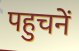
पहुचनें